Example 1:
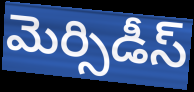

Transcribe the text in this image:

మెర్సిడీస్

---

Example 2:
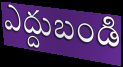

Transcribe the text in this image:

ఎద్దుబండి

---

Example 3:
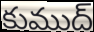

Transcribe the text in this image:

కుముద్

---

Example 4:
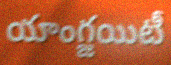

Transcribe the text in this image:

యాంగ్జయిటీ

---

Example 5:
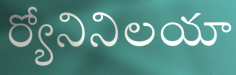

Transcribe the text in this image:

ర్యోనినిలయా